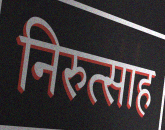
निरुत्साह